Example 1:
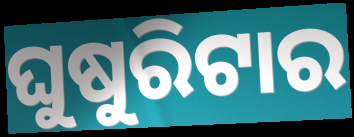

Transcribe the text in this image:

ଘୁଷୁରିଟାର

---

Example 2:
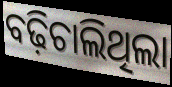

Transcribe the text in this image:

ବଢ଼ିଚାଲିଥିଲା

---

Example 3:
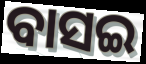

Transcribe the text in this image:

ବାସଇ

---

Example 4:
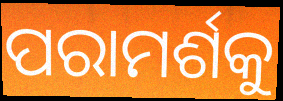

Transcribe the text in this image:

ପରାମର୍ଶକୁ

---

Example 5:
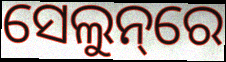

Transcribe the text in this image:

ସେଲୁନ୍‌ରେ